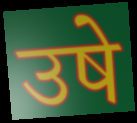
उषे